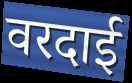
वरदाई